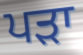
ਪੜਾ